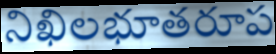
నిఖిలభూతరూప